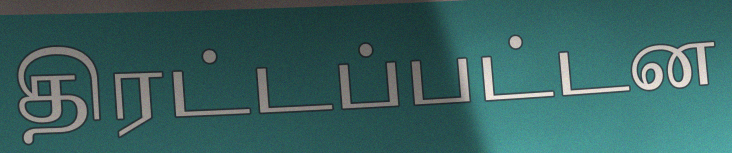
திரட்டப்பட்டன